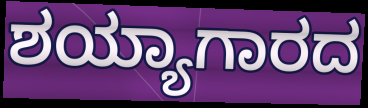
ಶಯ್ಯಾಗಾರದ